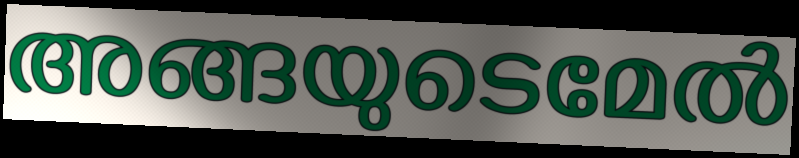
അങ്ങയുടെമേൽ